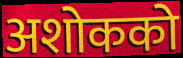
अशोकको